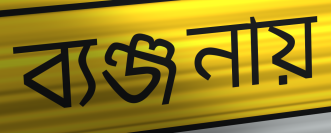
ব্যঞ্জনায়